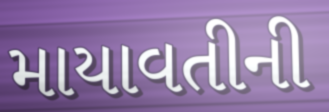
માયાવતીની